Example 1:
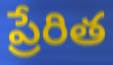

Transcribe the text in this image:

ప్రేరిత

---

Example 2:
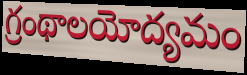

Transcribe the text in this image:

గ్రంథాలయోద్యమం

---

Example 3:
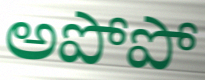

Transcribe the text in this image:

అపోపో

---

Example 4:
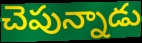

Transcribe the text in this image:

చెపున్నాడు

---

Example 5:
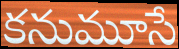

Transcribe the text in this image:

కనుమూసే